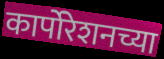
कार्पोरेशनच्या